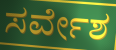
ಸರ್ವೇಶ